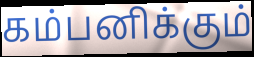
கம்பனிக்கும்